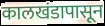
कालखंडापासून